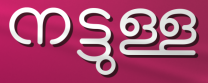
നട്ടുള്ള